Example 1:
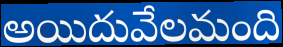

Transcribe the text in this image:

అయిదువేలమంది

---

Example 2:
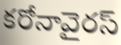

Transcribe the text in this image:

కరోనావైరస్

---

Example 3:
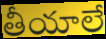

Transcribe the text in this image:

తీయాలే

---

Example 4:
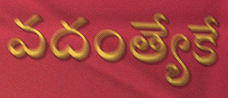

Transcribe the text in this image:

వదంత్యేకే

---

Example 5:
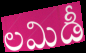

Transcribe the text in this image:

లమిడీ